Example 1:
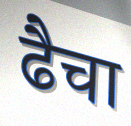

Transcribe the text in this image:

ढैचा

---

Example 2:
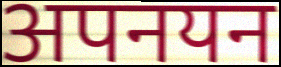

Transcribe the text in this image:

अपनयन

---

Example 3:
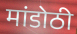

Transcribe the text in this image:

मांडोठी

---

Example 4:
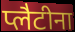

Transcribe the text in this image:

प्लैटीना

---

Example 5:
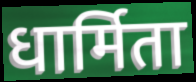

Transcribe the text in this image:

धार्मिता